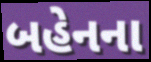
બહેનના